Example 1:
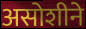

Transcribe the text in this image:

असोशीने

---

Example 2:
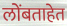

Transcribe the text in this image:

लोंबताहेत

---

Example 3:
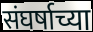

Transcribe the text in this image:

संघर्षाच्या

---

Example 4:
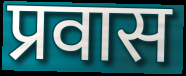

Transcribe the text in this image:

प्रवास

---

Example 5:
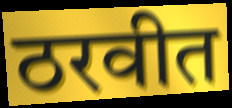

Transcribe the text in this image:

ठरवीत